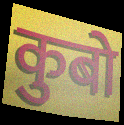
कुबो